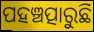
ପହଞ୍ଚତ୍ପାରୁଛି